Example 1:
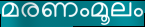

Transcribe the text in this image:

മരണംമൂലം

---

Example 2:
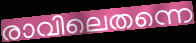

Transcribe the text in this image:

രാവിലെതന്നെ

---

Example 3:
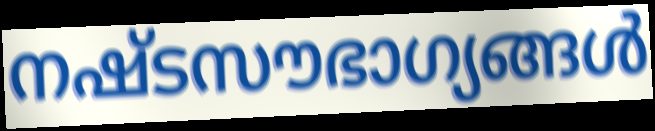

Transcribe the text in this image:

നഷ്ടസൗഭാഗ്യങ്ങൾ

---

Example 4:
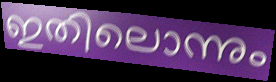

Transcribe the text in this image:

ഇതിലൊന്നും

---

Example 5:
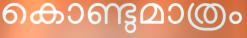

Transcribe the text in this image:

കൊണ്ടുമാത്രം